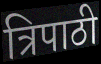
त्रिपाठी